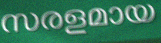
സരളമായ